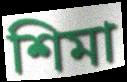
শিমা